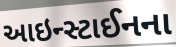
આઇન્સ્ટાઈનના